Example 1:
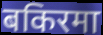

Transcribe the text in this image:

बकिरमा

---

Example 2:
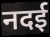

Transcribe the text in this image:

नदई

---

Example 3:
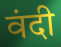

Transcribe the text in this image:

वंदी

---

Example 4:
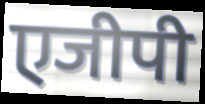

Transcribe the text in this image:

एजीपी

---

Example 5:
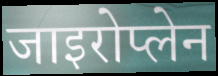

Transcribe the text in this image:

जाइरोप्लेन